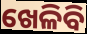
ଖେଳିବି